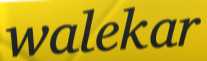
walekar